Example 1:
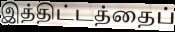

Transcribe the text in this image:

இத்திட்டத்தைப்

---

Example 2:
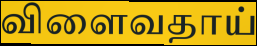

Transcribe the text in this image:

விளைவதாய்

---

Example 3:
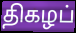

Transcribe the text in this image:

திகழப்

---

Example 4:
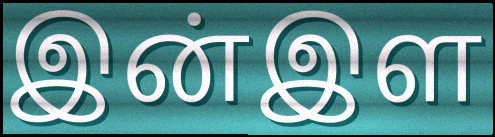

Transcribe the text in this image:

இன்இள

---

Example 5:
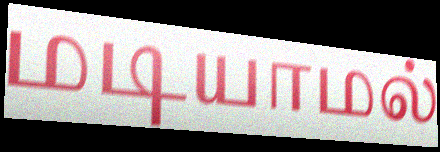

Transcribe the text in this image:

மடியாமல்